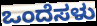
ಒಂದೆಸಳು